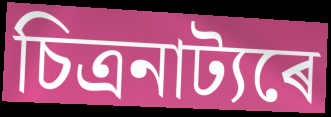
চিত্ৰনাট্যৰে